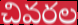
చివరల